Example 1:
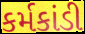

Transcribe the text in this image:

કર્મકાંડી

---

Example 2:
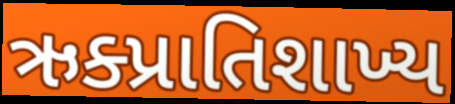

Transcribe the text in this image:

ઋક્પ્રાતિશાખ્ય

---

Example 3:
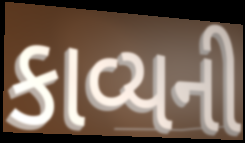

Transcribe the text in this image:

કાવ્યની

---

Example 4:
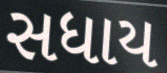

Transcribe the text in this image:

સધાય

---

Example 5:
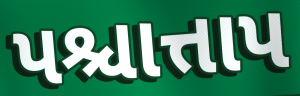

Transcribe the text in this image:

પશ્ચાત્તાપ